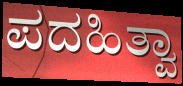
ಪದಹಿತ್ವಾ